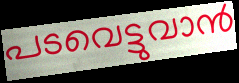
പടവെട്ടുവാൻ